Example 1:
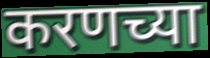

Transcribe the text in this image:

करणच्या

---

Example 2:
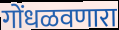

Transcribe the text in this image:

गोंधळवणारा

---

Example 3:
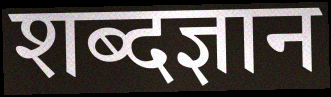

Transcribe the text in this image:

शब्दज्ञान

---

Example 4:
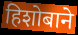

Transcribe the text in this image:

हिशोबाने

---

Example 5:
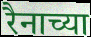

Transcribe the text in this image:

रैनाच्या